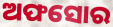
ଅଫସୋର